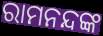
ରାମନନ୍ଦଙ୍କ